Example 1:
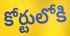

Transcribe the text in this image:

కోర్టులోకి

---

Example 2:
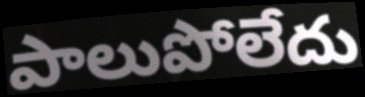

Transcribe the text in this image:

పాలుపోలేదు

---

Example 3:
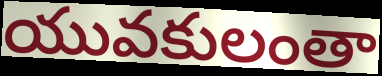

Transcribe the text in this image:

యువకులంతా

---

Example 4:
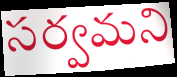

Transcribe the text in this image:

సర్వమని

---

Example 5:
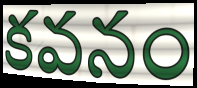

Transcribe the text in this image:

కవనం